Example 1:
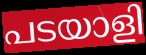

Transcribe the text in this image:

പടയാളി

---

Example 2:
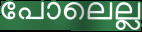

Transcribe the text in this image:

പോലെല്ല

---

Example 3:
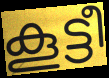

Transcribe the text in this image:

കൂട്ടീ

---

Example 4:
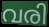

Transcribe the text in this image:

വരി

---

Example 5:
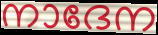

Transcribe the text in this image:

നാദേന